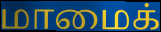
மாமைக்